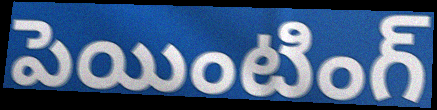
పెయింటింగ్